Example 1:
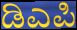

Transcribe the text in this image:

ಡಿಎಪಿ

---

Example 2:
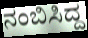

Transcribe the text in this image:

ನಂಬಿಸಿದ್ದ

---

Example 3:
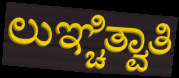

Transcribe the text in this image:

ಲುಞ್ಚಿತ್ವಾತಿ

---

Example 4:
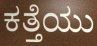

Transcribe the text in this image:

ಕತ್ತೆಯು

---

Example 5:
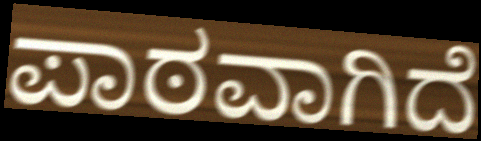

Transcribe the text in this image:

ಪಾಠವಾಗಿದೆ